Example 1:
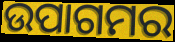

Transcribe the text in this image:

ଉପାଗମର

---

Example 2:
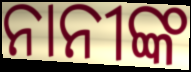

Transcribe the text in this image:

ନାନୀଙ୍କ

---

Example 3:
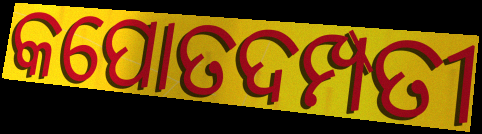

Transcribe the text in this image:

କପୋତଦମ୍ପତୀ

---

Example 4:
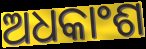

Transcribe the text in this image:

ଅଧକାଂଶ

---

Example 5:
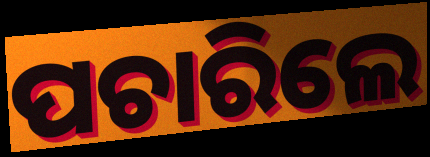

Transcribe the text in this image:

ପଚାରିଲେ